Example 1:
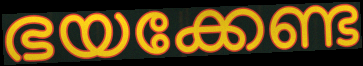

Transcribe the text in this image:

ഭയക്കേണ്ട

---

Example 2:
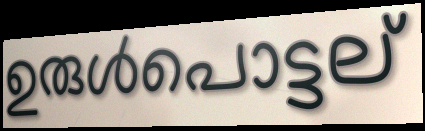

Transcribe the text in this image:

ഉരുൾപൊട്ടല്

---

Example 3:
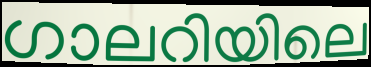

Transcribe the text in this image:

ഗാലറിയിലെ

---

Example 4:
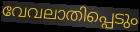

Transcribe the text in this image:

വേവലാതിപ്പെടും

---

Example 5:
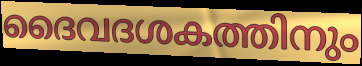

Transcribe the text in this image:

ദൈവദശകത്തിനും